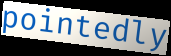
pointedly